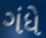
ગંધે